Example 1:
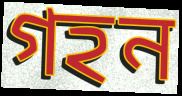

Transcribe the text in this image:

গহন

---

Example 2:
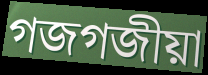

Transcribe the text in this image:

গজগজীয়া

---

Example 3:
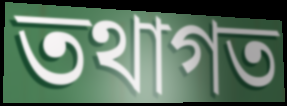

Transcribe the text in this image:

তথাগত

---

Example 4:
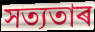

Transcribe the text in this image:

সত্যতাৰ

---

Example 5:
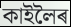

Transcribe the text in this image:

কাইলৈৰ